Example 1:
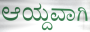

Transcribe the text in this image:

ಆಯ್ದವಾಗಿ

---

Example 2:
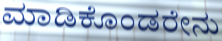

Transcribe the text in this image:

ಮಾಡಿಕೊಂಡರೇನು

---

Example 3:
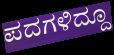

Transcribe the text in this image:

ಪದಗಳಿದ್ದೂ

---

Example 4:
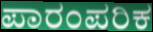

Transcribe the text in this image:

ಪಾರಂಪರಿಕ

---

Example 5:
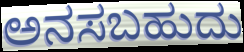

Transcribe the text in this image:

ಅನಸಬಹುದು